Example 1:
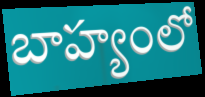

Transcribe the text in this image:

బాహ్యంలో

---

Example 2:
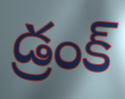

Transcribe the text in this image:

డ్రంక్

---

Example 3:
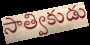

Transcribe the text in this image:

సాత్వికుడు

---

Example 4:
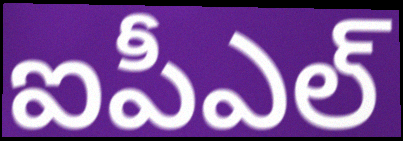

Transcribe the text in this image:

ఐపీఎల్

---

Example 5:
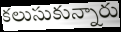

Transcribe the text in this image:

కలుసుకున్నారు